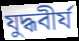
যুদ্ধবীর্য